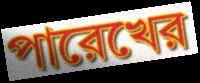
পারেখের